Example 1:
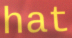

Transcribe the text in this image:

hat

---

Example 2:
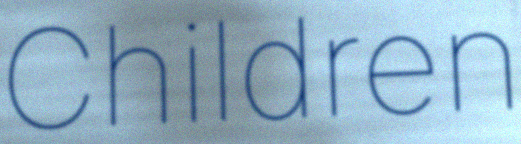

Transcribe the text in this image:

Children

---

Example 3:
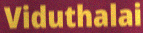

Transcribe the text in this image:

Viduthalai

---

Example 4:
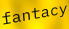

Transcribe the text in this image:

fantacy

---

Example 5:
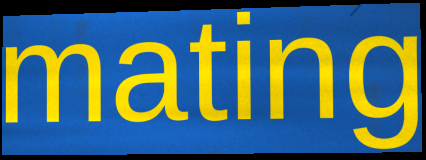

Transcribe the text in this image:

mating